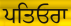
ਪਤਿਓਰਾ